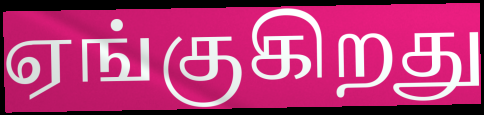
ஏங்குகிறது